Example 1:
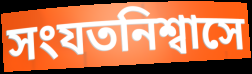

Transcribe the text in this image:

সংযতনিশ্বাসে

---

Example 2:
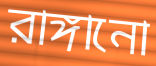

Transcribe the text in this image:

রাঙ্গানো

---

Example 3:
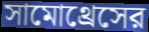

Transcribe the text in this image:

সামোথ্রেসের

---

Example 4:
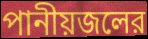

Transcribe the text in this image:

পানীয়জলের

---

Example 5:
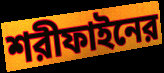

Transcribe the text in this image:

শরীফাইনের